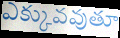
ఎక్కువవుతూ